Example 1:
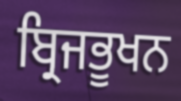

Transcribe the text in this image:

ਬ੍ਰਿਜਭੂਖਨ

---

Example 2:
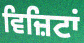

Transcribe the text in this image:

ਵਿਜ਼ਿਟਾਂ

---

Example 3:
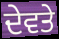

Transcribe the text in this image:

ਦੇਵਤੇ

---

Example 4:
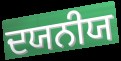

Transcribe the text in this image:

ਦਯਨੀਯ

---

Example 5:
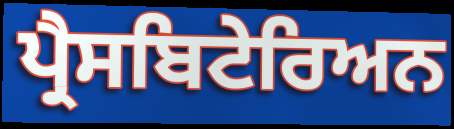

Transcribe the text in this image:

ਪ੍ਰੈਸਬਿਟੇਰਿਅਨ